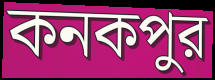
কনকপুর